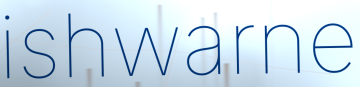
ishwarne